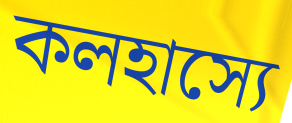
কলহাস্যে